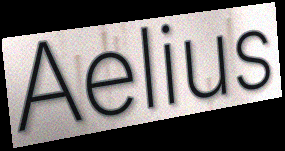
Aelius